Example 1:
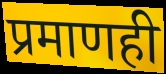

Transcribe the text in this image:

प्रमाणही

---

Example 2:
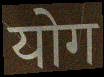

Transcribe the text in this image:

योग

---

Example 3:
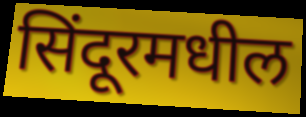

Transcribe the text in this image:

सिंदूरमधील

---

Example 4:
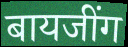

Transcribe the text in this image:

बायजींग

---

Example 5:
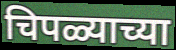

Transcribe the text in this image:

चिपळ्याच्या